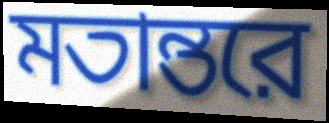
মতান্তরে